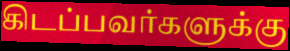
கிடப்பவர்களுக்கு